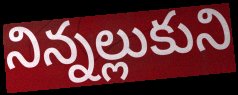
నిన్నల్లుకుని